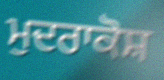
ਮੁਦਰਾਕੋਸ਼